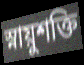
স্নায়ুশক্তি